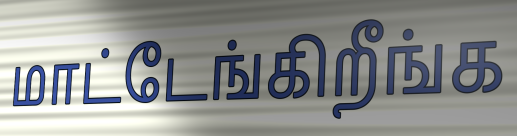
மாட்டேங்கிறீங்க